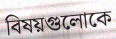
বিষয়গুলোকে